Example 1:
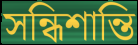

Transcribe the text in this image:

সন্ধিশান্তি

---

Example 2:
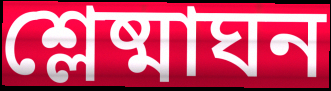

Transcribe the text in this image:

শ্লেষ্মাঘন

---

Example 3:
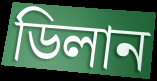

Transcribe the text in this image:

ডিলান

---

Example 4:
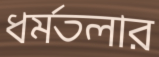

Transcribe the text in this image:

ধর্মতলার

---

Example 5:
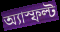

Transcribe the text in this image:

অ্যাস্ফল্ট